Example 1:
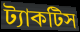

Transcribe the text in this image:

ট্যাকটিস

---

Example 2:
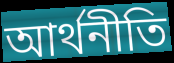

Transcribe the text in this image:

আর্থনীতি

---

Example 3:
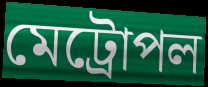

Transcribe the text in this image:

মেট্রোপল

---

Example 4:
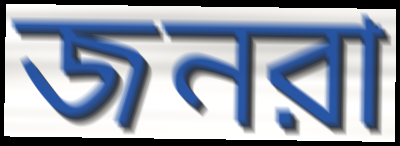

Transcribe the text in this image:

জনরা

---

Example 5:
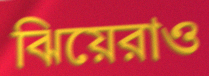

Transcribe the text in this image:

ঝিয়েরাও